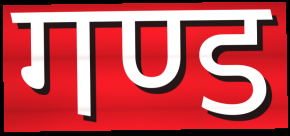
गण्ड